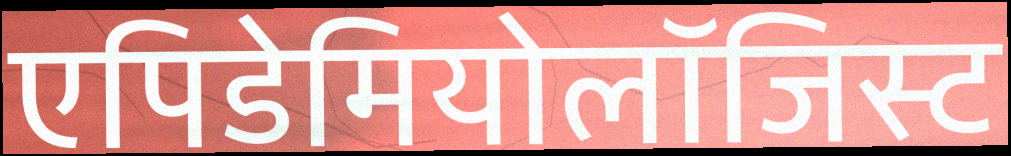
एपिडेमियोलॉजिस्ट